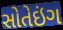
સોતેઇંગ